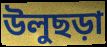
উলুছড়া